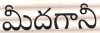
మీదగానీ